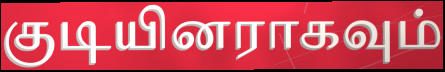
குடியினராகவும்